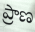
ప్రాణ